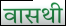
वासथी